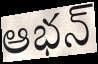
ఆభన్